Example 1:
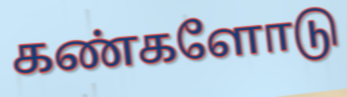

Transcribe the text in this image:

கண்களோடு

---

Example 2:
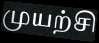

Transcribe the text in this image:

முயற்சி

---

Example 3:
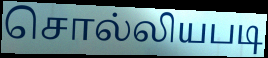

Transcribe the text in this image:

சொல்லியபடி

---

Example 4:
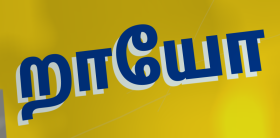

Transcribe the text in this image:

றாயோ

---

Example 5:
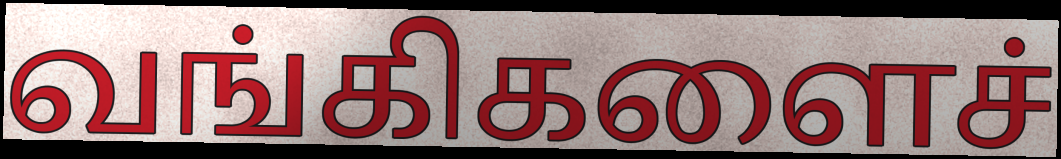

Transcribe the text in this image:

வங்கிகளைச்